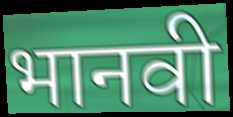
भानवी